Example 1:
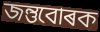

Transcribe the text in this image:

জন্তুবোৰক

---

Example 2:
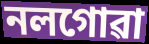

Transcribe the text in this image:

নলগোৱা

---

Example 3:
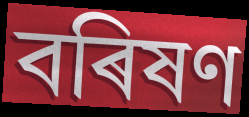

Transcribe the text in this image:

বৰিষণ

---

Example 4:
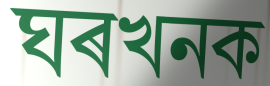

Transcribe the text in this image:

ঘৰখনক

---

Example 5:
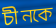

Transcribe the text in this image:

চীনকে